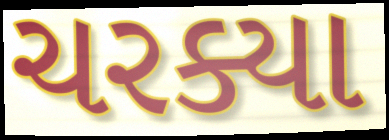
ચરક્યા